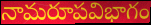
నామరూపవిభాగం